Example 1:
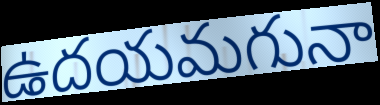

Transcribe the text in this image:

ఉదయమగునా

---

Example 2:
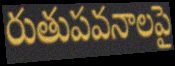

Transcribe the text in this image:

రుతుపవనాలపై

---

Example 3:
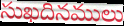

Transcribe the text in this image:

సుఖదినములు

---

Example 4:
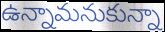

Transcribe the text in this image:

ఉన్నామనుకున్నా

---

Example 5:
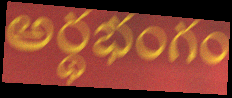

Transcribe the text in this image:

అర్థభంగం